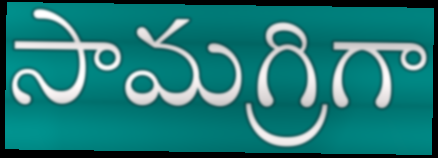
సామగ్రిగా